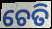
ଚେତି